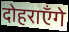
दोहराएँगे